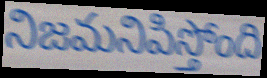
నిజమనిపిస్తోంది